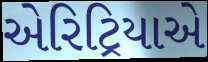
એરિટ્રિયાએ